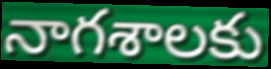
నాగశాలకు